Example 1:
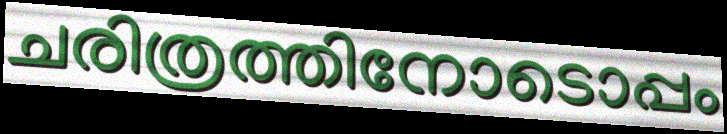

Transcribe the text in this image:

ചരിത്രത്തിനോടൊപ്പം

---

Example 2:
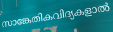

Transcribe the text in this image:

സാങ്കേതികവിദ്യകളാൽ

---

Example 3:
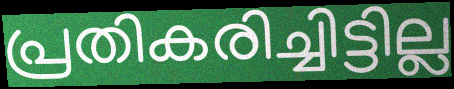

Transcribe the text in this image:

പ്രതികരിച്ചിട്ടില്ല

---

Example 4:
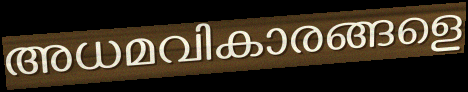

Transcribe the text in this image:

അധമവികാരങ്ങളെ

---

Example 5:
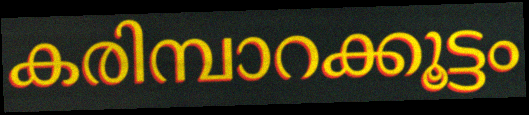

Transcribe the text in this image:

കരിമ്പാറക്കൂട്ടം